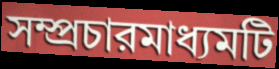
সম্প্রচারমাধ্যমটি